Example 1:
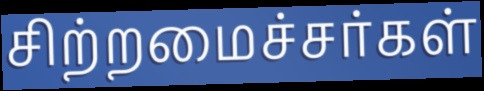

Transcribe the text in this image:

சிற்றமைச்சர்கள்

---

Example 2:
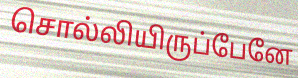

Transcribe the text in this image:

சொல்லியிருப்பேனே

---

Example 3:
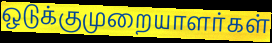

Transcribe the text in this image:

ஒடுக்குமுறையாளர்கள்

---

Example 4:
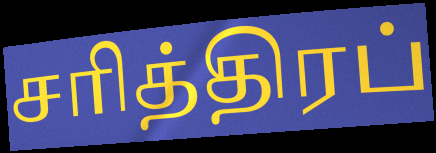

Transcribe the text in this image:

சரித்திரப்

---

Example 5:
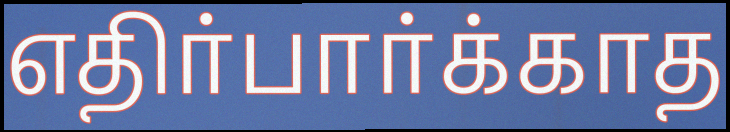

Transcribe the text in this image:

எதிர்பார்க்காத